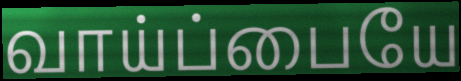
வாய்ப்பையே